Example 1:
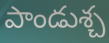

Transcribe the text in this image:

పాండుశ్చ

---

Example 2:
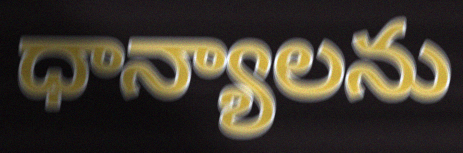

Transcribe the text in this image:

ధాన్యాలను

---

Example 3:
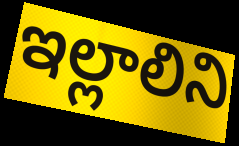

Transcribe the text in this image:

ఇల్లాలిని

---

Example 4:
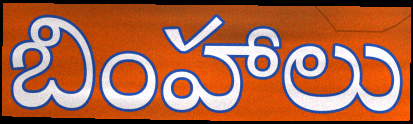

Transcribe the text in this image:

బింహాలు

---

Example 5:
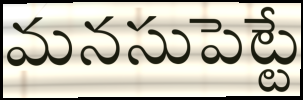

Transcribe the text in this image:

మనసుపెట్టే